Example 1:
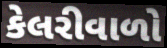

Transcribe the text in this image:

કેલરીવાળો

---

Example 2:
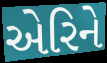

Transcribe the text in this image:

એરિને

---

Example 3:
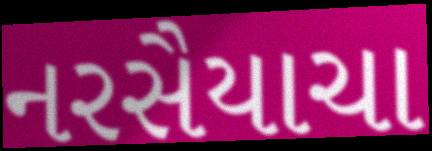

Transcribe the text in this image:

નરસૈયાચા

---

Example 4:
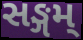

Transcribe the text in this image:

સઙ્ગમ્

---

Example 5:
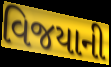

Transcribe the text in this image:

વિજયાની